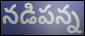
నడిపన్న